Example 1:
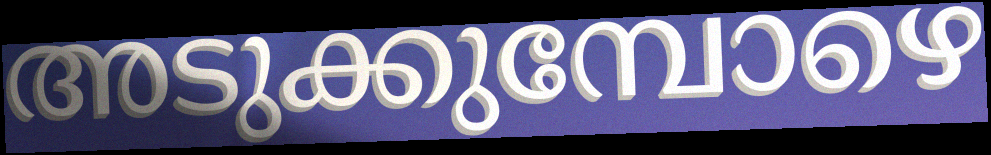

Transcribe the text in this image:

അടുക്കുമ്പോഴെ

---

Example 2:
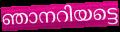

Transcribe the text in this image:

ഞാനറിയട്ടെ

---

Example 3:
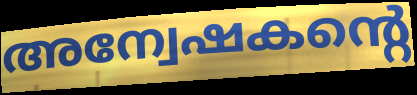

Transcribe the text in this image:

അന്വേഷകന്റെ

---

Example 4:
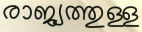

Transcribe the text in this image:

രാജ്യത്തുള്ള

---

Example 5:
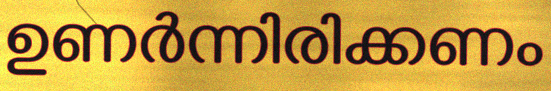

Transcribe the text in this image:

ഉണർന്നിരിക്കണം